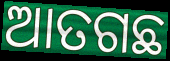
ଆତଗଛ